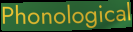
Phonological